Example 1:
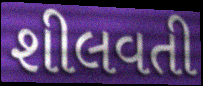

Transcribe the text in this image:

શીલવતી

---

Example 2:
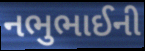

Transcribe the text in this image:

નભુભાઈની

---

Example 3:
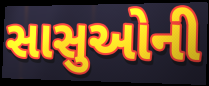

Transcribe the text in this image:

સાસુઓની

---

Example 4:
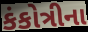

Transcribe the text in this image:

કંકોત્રીના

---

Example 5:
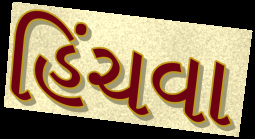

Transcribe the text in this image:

હિંચવા